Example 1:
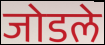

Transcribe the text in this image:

जोडले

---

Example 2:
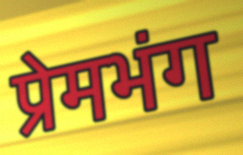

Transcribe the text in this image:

प्रेमभंग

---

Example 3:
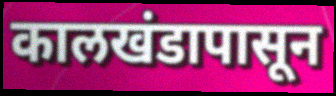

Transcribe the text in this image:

कालखंडापासून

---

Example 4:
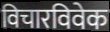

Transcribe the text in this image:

विचारविवेक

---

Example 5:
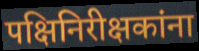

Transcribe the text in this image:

पक्षिनिरीक्षकांना